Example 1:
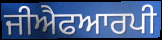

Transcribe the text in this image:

ਜੀਐਫਆਰਪੀ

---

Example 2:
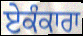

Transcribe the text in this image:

ਏਕੰਕਾਰਾ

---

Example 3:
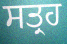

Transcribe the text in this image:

ਸਤ੍ਰਹ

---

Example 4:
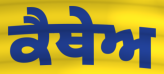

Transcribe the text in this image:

ਕੈਥੇਅ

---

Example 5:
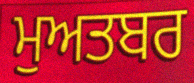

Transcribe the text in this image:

ਮੁਅਤਬਰ